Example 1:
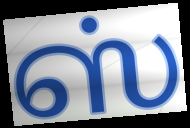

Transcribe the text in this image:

ஸ்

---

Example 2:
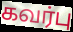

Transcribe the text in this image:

கவர்பு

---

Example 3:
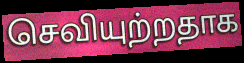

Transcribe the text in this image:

செவியுற்றதாக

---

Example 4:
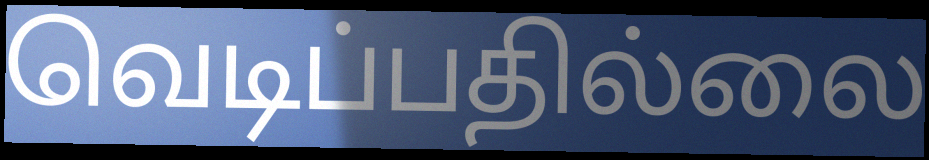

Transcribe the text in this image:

வெடிப்பதில்லை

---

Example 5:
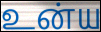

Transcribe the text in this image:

உன்ய